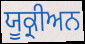
ਯੂਕ੍ਰੀਅਨ